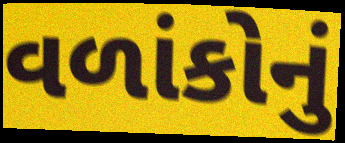
વળાંકોનું